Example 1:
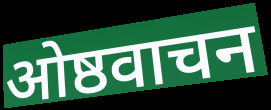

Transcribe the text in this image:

ओष्ठवाचन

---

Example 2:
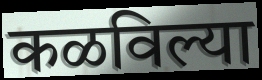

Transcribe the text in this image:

कळविल्या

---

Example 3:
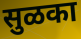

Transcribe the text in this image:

सुळका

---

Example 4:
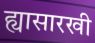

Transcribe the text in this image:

ह्यासारखी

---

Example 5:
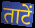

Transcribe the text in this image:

ताटें